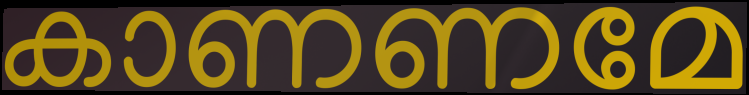
കാണണമേ